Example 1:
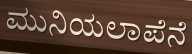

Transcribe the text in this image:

ಮುನಿಯಲಾಪೆನೆ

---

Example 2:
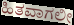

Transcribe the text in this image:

ಹಿತವಾಗಲೀ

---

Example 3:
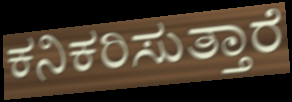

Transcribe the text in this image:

ಕನಿಕರಿಸುತ್ತಾರೆ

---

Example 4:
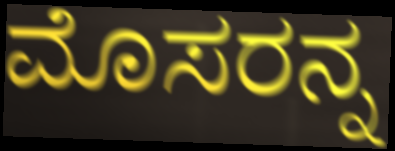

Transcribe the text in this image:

ಮೊಸರನ್ನ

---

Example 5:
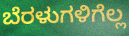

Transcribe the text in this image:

ಬೆರಳುಗಳಿಗೆಲ್ಲ